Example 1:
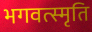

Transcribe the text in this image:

भगवत्स्मृति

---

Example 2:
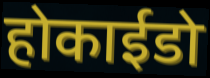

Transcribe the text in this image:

होकाईडो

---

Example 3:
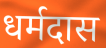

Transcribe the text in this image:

धर्मदास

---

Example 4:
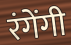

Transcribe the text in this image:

रंगेंगी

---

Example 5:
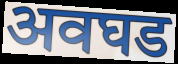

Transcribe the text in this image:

अवघड